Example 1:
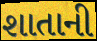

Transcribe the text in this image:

શાતાની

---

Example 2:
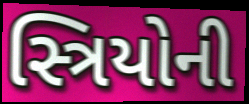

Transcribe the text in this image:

સ્ત્રિયોની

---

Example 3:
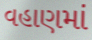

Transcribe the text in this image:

વહાણમાં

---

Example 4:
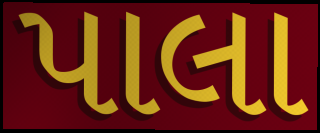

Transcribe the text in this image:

પાલા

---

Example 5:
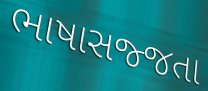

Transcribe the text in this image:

ભાષાસજ્જતા